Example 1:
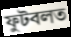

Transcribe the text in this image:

ফুটবলত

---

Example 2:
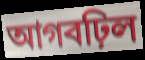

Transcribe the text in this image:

আগবঢ়িল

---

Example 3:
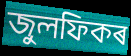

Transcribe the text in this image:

জুলফিকৰ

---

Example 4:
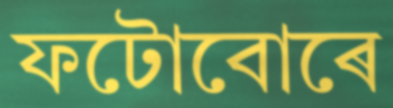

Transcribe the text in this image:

ফটোবোৰে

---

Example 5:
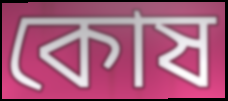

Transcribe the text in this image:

কোষ